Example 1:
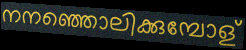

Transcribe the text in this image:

നനഞ്ഞൊലിക്കുമ്പോള്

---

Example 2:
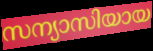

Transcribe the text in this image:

സന്യാസിയായ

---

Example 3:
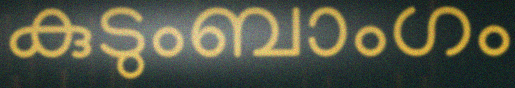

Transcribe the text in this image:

കുടുംബാംഗം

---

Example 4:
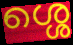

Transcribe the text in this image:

ശ്ശെ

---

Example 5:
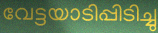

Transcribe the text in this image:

വേട്ടയാടിപ്പിടിച്ചു